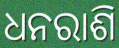
ଧନରାଶି